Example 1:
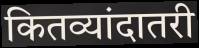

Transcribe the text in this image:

कितव्यांदातरी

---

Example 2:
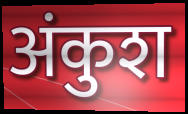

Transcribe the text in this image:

अंकुश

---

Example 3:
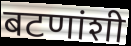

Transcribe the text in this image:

बटणांशी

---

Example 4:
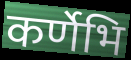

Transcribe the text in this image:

कर्णेभि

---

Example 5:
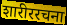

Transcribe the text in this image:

शारीररचना